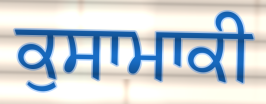
ਕੁਸਾਮਾਕੀ